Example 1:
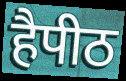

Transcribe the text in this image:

हैपीठ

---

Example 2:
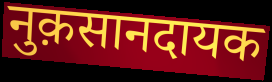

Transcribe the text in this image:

नुक़सानदायक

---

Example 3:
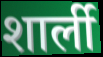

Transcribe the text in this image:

शार्ली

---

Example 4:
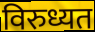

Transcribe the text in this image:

विरुध्यत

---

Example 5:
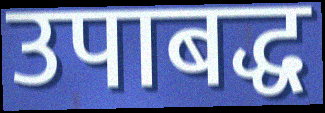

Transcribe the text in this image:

उपाबद्ध